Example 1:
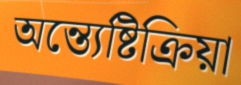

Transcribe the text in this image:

অন্ত্যেষ্টিক্ৰিয়া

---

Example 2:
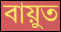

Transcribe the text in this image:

বায়ুত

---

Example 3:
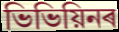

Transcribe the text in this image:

ভিভিয়িনৰ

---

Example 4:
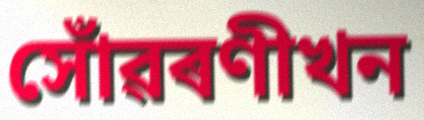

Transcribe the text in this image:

সোঁৱৰণীখন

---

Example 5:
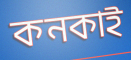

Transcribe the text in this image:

কনকাই